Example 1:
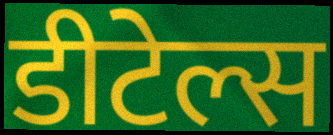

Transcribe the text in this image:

डीटेल्‍स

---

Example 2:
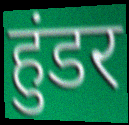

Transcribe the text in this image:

हुंडर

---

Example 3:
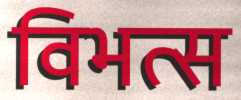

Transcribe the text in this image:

विभत्स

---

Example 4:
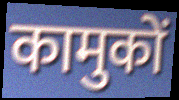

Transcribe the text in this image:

कामुकों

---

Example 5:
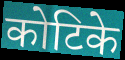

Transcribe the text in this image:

कोटिके